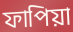
ফাপিয়া